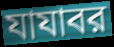
যাযাবর